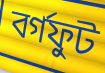
বৰ্গফুট